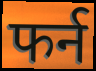
फर्न